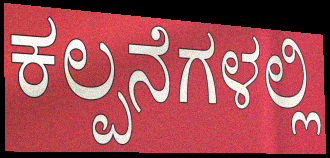
ಕಲ್ಪನೆಗಳಲ್ಲಿ